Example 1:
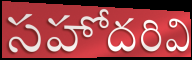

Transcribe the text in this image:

సహోదరివి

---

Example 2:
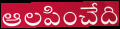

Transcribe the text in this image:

ఆలపించేది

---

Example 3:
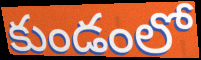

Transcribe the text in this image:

కుండంలో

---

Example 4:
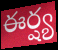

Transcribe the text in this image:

ఈర్ష్య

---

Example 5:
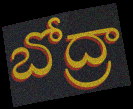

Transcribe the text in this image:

బోద్రా